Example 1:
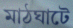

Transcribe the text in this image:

মাঠঘাটে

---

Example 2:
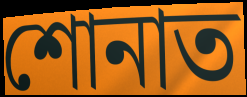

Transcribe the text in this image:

শোনাত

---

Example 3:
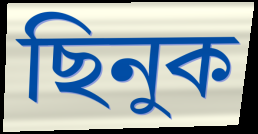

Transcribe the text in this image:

ছিনুক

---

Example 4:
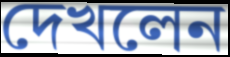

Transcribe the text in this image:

দেখলেন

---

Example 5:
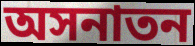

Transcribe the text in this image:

অসনাতন